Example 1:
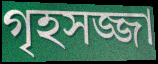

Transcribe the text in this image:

গৃহসজ্জা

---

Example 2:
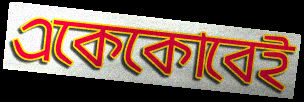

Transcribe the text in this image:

একেকোবেই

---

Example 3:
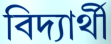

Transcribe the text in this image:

বিদ্যাৰ্থী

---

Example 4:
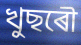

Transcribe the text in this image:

খুছৰৌ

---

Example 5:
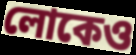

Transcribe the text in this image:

লোকেও